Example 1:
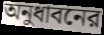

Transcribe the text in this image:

অনুধাবনের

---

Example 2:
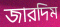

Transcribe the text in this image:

জারদিম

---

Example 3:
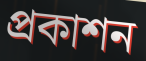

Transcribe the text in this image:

প্রকাশন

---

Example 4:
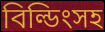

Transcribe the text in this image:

বিল্ডিংসহ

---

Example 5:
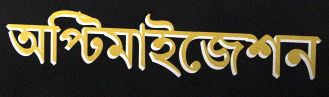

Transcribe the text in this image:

অপ্টিমাইজেশন